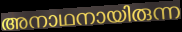
അനാഥനായിരുന്ന